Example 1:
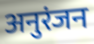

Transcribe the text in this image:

अनुरंजन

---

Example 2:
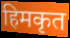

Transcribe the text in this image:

हिमकृत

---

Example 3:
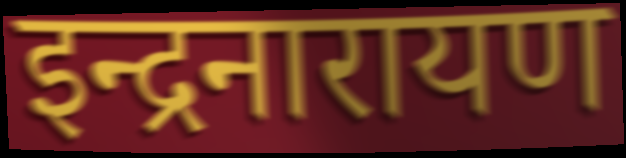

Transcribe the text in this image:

इन्द्रनारायण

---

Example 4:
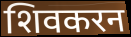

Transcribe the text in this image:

शिवकरन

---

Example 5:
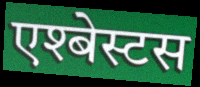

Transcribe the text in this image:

एश्बेस्टस